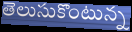
తెలుసుకొంటున్న